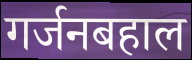
गर्जनबहाल